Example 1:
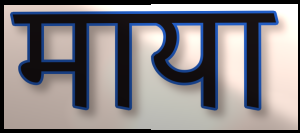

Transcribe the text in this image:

माया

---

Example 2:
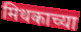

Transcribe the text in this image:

मिथकाच्या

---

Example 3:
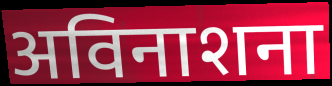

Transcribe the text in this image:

अविनाशना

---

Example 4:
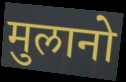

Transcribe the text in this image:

मुलानो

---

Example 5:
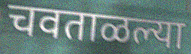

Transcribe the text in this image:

चवताळल्या